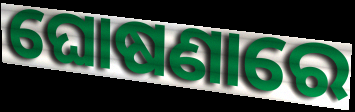
ଘୋଷଣାରେ